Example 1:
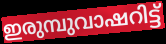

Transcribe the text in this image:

ഇരുമ്പുവാഷറിട്ട്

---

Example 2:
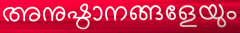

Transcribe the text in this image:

അനുഷ്ഠാനങ്ങളേയും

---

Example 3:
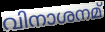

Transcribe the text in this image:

വിനാശനമ്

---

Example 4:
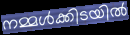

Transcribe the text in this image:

നമ്മൾക്കിടയിൽ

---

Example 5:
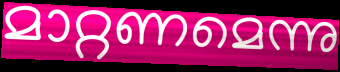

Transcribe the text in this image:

മാറ്റണമെന്നു